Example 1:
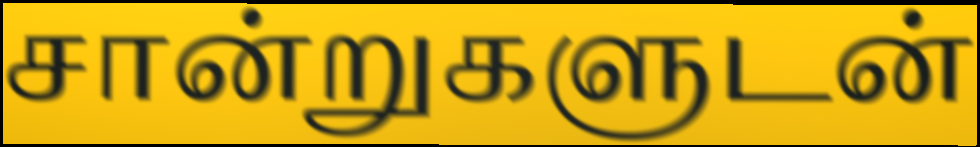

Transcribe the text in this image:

சான்றுகளுடன்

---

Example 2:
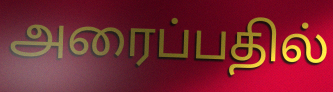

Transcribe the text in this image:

அரைப்பதில்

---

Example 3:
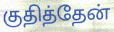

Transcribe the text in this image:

குதித்தேன்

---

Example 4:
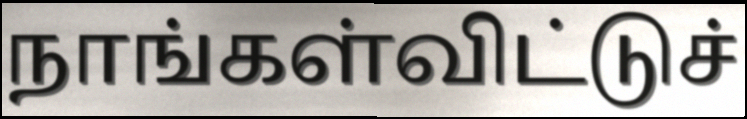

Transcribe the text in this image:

நாங்கள்விட்டுச்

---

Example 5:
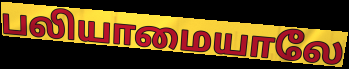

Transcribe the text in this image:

பலியாமையாலே